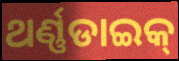
ଥର୍ଣ୍ଣଡାଇକ୍